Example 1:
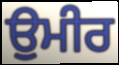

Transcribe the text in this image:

ਉਮੀਰ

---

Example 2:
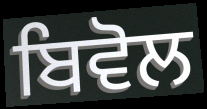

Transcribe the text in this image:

ਬਿਵੋਲ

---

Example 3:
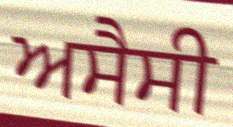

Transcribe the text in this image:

ਅਸੈਸੀ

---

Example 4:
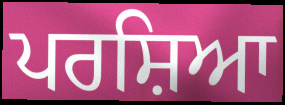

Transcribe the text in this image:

ਪਰਸ਼ਿਆ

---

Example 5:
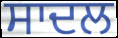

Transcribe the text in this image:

ਸਾਦਲ